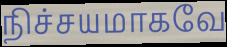
நிச்சயமாகவே